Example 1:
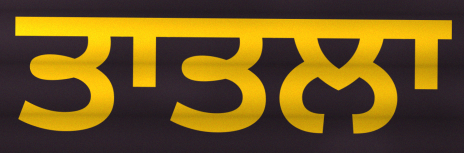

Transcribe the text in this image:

ਤਾਤਲਾ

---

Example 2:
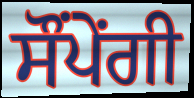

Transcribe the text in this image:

ਸੌਂਪੇਂਗੀ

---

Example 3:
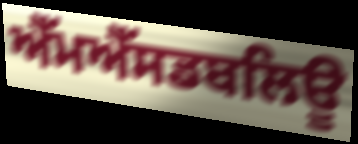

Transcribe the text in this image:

ਐੱਮਐੱਸਡਬਲਿਊ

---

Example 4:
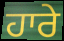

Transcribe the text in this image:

ਹਾਰੇ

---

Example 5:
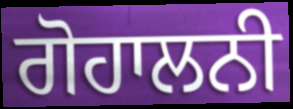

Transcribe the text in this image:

ਗੋਹਾਲਨੀ